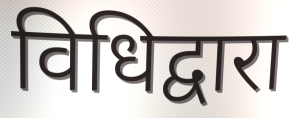
विधिद्वारा